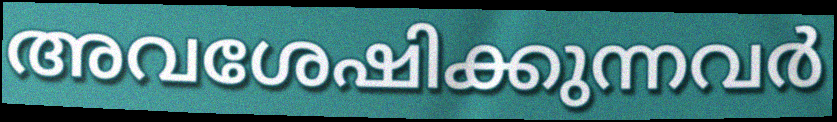
അവശേഷിക്കുന്നവർ